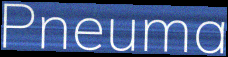
Pneuma